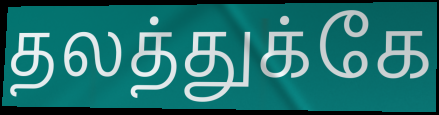
தலத்துக்கே